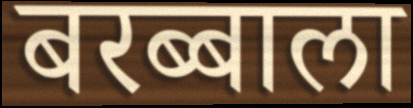
बरब्बाला